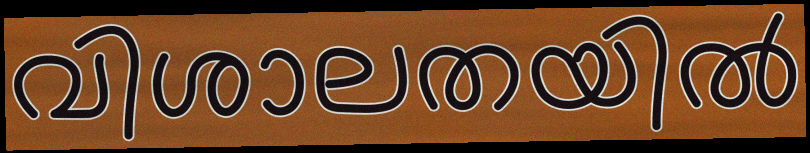
വിശാലതയിൽ